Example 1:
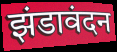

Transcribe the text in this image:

झंडावंदन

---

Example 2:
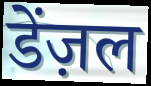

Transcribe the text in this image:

डेंज़ल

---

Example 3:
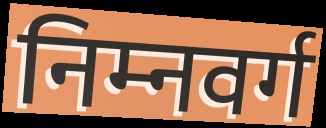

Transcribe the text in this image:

निम्नवर्ग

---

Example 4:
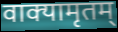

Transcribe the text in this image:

वाक्यामृतम्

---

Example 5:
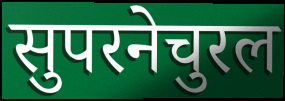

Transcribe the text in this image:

सुपरनेचुरल